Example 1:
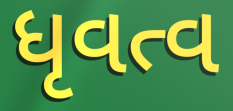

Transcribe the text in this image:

ધૃવત્વ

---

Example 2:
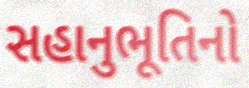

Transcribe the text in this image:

સહાનુભૂતિનો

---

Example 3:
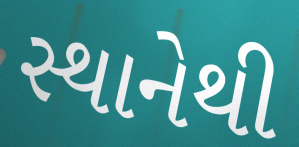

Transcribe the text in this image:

સ્થાનેથી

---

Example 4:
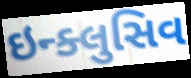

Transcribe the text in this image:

ઇન્ક્લુસિવ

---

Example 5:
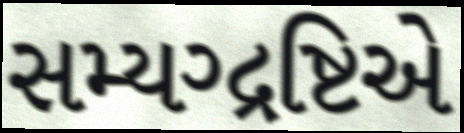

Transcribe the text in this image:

સમ્યગ્દ્રષ્ટિએ